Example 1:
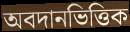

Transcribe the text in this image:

অবদানভিত্তিক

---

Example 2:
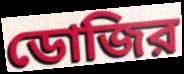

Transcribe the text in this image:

ডোজির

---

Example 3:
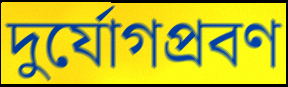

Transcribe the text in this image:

দুর্যোগপ্রবণ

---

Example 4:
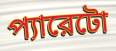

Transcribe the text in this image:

প্যারেটো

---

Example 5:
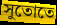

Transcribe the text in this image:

সুতোতে